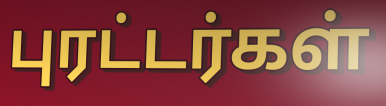
புரட்டர்கள்